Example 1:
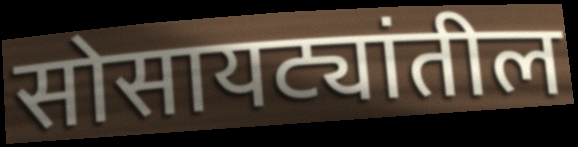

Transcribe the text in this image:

सोसायट्यांतील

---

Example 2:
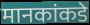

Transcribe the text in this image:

मानकांकडे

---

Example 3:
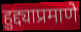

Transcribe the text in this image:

हुद्द्याप्रमाणे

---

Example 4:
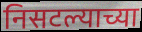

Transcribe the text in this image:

निसटल्याच्या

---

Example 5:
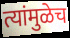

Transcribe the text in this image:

त्यांमुळेच